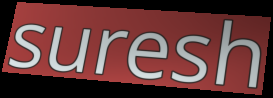
suresh